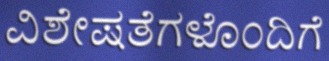
ವಿಶೇಷತೆಗಳೊಂದಿಗೆ